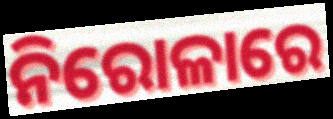
ନିରୋଳାରେ